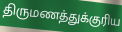
திருமணத்துக்குரிய